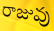
రాజువు